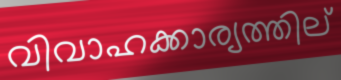
വിവാഹക്കാര്യത്തില്